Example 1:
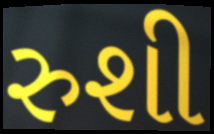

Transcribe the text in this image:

રુશી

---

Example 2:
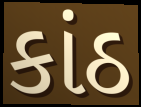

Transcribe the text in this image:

કાંઠ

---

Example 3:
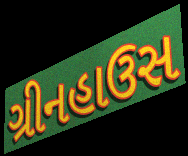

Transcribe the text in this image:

ગ્રીનહાઉસ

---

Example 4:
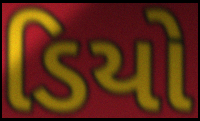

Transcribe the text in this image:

ડિયો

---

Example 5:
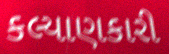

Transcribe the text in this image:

કલ્યાણકારી